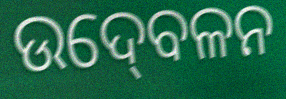
ଉଦ୍‍ବେଳନ